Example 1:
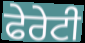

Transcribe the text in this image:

ਫੇਰੇਟੀ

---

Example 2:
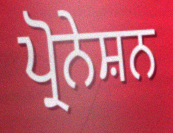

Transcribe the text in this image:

ਪ੍ਰੋਨੇਸ਼ਨ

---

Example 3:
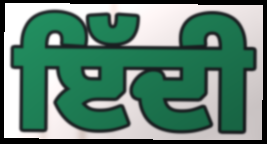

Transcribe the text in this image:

ਇੱਦੀ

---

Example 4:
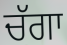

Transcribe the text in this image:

ਚੱਗਾ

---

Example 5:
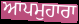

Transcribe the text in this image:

ਆਪਮੁਹਾਰਾ